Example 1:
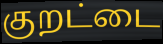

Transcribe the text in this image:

குறட்டை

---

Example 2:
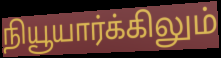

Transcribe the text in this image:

நியூயார்க்கிலும்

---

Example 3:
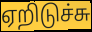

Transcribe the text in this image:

ஏறிடுச்சு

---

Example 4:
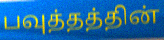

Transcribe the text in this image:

பவுத்தத்தின்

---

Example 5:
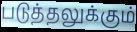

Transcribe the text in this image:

படுத்தலுக்கும்